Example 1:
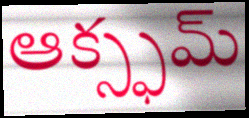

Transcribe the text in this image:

ఆక్స్ఫమ్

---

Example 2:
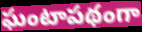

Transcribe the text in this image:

ఘంటాపథంగా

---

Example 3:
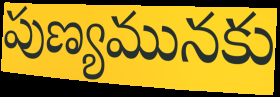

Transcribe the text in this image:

పుణ్యమునకు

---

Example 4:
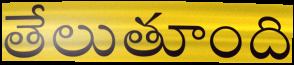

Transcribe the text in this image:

తేలుతూంది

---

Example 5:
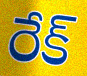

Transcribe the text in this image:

రేక్